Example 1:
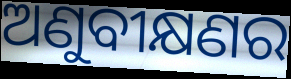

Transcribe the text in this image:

ଅଣୁବୀକ୍ଷଣର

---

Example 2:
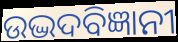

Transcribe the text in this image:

ଉଦ୍ଭଦବିଜ୍ଞାନୀ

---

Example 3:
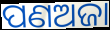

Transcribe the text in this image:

ପଣଅଜା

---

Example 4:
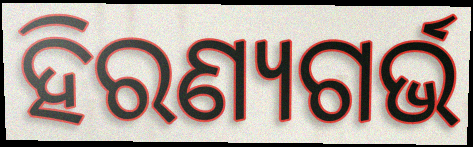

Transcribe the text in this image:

ହିରଣ୍ୟଗର୍ଭ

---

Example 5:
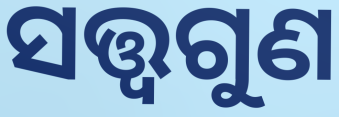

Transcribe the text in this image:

ସତ୍ତ୍ୱଗୁଣ